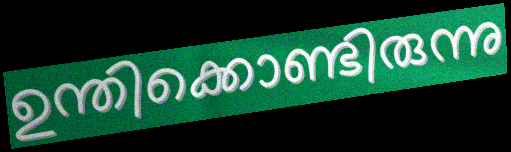
ഉന്തിക്കൊണ്ടിരുന്നു